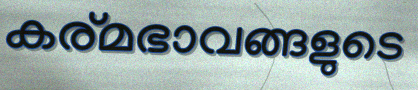
കര്മഭാവങ്ങളുടെ